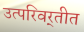
उत्परिवर्तीत